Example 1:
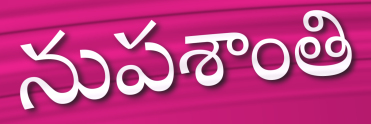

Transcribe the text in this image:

నుపశాంతి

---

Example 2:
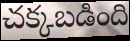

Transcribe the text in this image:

చక్కబడింది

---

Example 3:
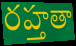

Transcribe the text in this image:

రహ్తతా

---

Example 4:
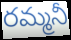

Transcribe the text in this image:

రమ్మనీ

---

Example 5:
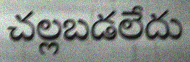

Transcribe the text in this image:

చల్లబడలేదు